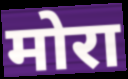
मोरा